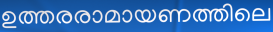
ഉത്തരരാമായണത്തിലെ